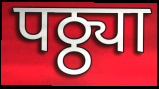
पठ्ठ्या